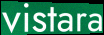
vistara